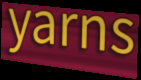
yarns